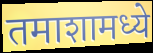
तमाशामध्ये